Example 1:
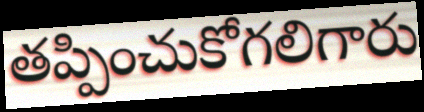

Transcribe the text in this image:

తప్పించుకోగలిగారు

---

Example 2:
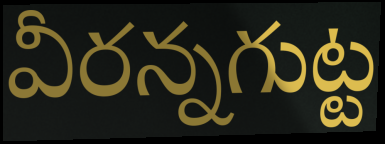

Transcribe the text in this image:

వీరన్నగుట్ట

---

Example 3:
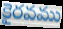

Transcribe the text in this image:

కైరవము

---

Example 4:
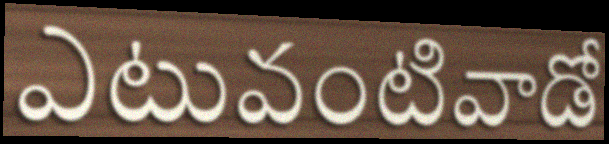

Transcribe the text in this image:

ఎటువంటివాడో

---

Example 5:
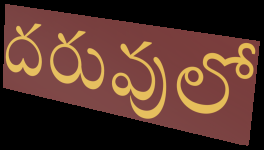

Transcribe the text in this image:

దరువులో